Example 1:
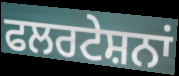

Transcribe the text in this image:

ਫਲਰਟੇਸ਼ਨਾਂ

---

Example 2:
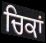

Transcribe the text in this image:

ਚਿਕਾਂ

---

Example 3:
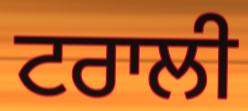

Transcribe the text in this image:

ਟਰਾਲੀ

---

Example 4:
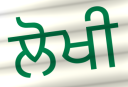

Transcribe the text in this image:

ਲੋਖੀ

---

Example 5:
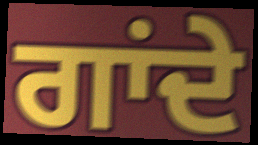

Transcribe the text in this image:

ਗਾਂਦੇ